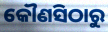
କୌଣସିଠାରୁ